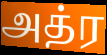
அத்ர